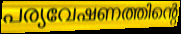
പര്യവേഷണത്തിന്റെ